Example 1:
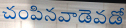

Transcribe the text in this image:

చంపినవాడెవడో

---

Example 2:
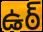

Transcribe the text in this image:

ఉఠ్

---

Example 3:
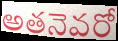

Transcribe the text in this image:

అతనెవరో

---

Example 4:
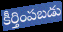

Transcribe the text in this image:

కీర్తింపబడు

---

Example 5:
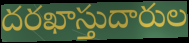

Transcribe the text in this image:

దరఖాస్తుదారుల